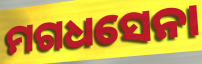
ମଗଧସେନା